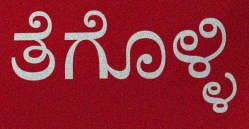
ತೆಗೊಳ್ಳಿ